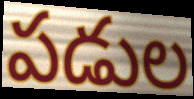
పడుల